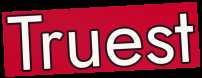
Truest